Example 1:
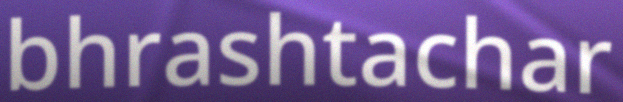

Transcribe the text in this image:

bhrashtachar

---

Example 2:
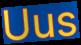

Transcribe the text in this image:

Uus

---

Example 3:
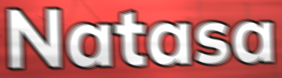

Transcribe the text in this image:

Natasa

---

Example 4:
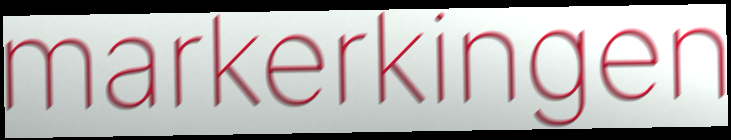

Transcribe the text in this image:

markerkingen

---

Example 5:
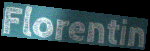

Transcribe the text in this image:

Florentin